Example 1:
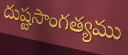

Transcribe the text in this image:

దుష్టసాంగత్యము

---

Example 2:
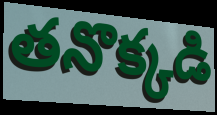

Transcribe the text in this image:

తనొక్కడి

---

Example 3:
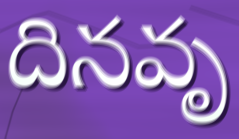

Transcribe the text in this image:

దినవృ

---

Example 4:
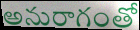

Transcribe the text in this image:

అనురాగంతో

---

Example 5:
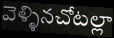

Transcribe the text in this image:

వెళ్ళినచోటల్లా